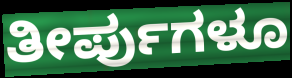
ತೀರ್ಪುಗಳೂ